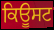
ਕਿਊਸਟ